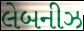
લેબનીઝ